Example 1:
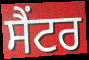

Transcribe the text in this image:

ਸੈਂਟਰ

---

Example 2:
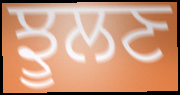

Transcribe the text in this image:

ਝੂਲਣ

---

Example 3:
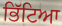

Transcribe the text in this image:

ਭਿੱਟਿਆ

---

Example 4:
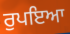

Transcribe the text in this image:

ਰੁਪਇਆ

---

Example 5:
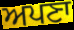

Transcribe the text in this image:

ਅਪਣਾ